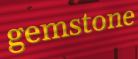
gemstone